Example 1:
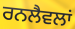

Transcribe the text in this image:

ਰਨਲੈਵਲਾਂ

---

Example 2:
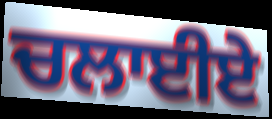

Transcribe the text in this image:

ਚਲਾਈਏ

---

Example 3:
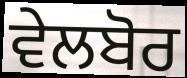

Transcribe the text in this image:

ਵੇਲਬੋਰ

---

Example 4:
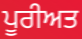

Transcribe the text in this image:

ਪੂਰੀਅਤ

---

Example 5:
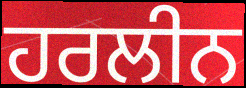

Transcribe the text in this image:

ਹਰਲੀਨ